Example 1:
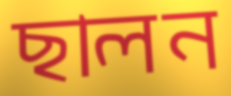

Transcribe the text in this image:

ছালন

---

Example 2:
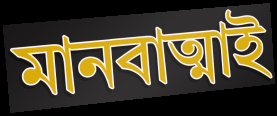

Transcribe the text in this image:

মানবাত্মাই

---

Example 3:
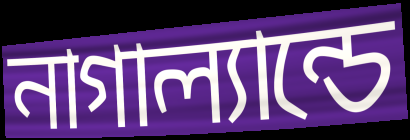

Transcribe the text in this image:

নাগাল্যান্ডে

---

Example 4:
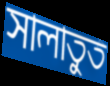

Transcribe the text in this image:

সালাতুত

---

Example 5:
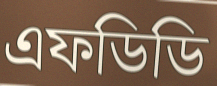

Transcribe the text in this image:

এফডিডি